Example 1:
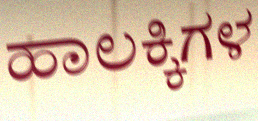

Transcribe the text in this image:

ಹಾಲಕ್ಕಿಗಳ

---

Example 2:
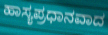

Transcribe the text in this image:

ಹಾಸ್ಯಪ್ರಧಾನವಾದ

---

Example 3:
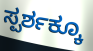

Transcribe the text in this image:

ಸ್ಪರ್ಶಕ್ಕೂ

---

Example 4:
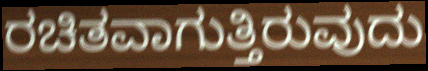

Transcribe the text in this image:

ರಚಿತವಾಗುತ್ತಿರುವುದು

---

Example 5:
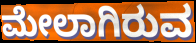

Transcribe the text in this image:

ಮೇಲಾಗಿರುವ